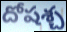
దోషశ్చ